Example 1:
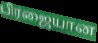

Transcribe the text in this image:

பிரஜையான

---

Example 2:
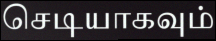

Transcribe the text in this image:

செடியாகவும்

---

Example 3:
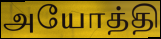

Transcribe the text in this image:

அயோத்தி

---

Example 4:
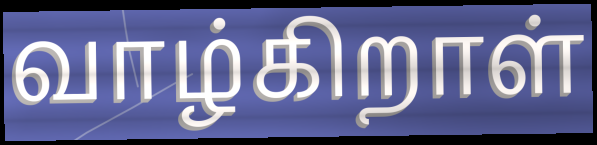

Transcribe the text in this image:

வாழ்கிறாள்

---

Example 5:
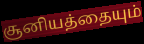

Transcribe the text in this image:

சூனியத்தையும்